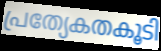
പ്രത്യേകതകൂടി